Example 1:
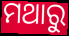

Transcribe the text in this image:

ମଥାରୁ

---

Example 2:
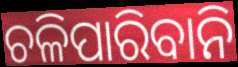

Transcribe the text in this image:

ଚଳିପାରିବାନି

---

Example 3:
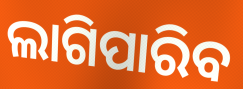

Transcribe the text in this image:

ଲାଗିପାରିବ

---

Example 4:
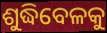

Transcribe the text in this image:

ଶୁଦ୍ଧିବେଳକୁ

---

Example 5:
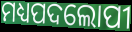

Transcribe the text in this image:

ମଧ୍ଯପଦଲୋପୀ